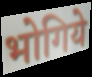
भोगिये